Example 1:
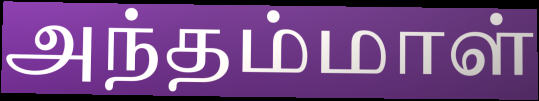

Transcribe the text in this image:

அந்தம்மாள்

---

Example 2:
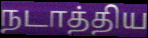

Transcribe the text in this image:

நடாத்திய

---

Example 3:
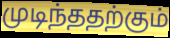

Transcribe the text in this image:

முடிந்ததற்கும்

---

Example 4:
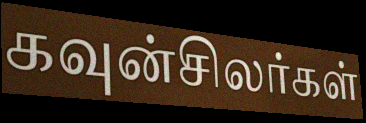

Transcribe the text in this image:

கவுன்சிலர்கள்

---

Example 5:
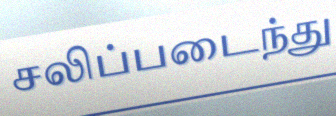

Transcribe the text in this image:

சலிப்படைந்து